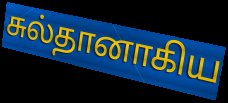
சுல்தானாகிய